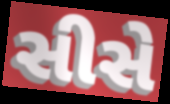
સીસે